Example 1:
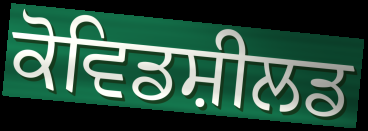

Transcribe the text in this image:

ਕੋਵਿਡਸ਼ੀਲਡ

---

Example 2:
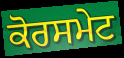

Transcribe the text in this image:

ਕੋਰਸਮੇਟ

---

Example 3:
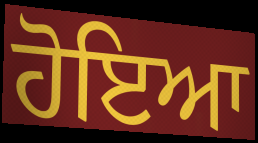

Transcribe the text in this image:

ਹੋਇਆ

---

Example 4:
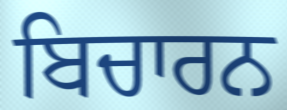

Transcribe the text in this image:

ਬਿਚਾਰਨ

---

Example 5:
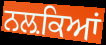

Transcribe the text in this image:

ਨਲ਼ਕਿਆਂ